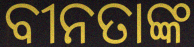
ବୀନତାଙ୍କ